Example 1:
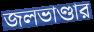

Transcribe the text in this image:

জলভাণ্ডার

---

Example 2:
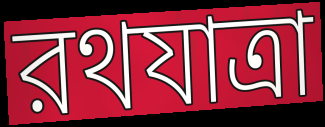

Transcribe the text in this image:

রথযাত্রা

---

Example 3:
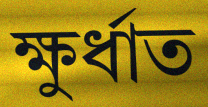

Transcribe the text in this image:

ক্ষুর্ধাত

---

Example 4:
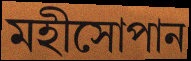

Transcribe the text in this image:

মহীসোপান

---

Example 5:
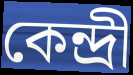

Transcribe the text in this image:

কেন্দ্রী